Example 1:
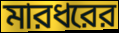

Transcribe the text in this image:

মারধরের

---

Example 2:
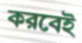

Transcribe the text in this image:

করবেই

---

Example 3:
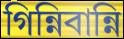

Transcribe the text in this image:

গিন্নিবান্নি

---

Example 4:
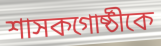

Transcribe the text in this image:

শাসকগোষ্ঠীকে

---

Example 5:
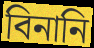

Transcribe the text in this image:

বিনানি